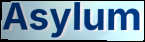
Asylum